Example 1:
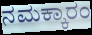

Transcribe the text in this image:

ನಮಕ್ಕಾರಂ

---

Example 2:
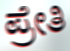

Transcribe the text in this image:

ಪ್ರೇತಿ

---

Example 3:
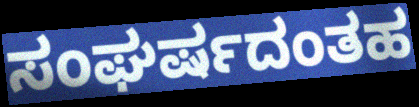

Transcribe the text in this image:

ಸಂಘರ್ಷದಂತಹ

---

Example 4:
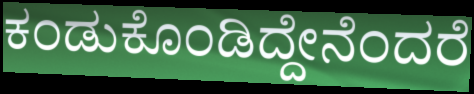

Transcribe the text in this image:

ಕಂಡುಕೊಂಡಿದ್ದೇನೆಂದರೆ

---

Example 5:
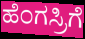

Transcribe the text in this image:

ಹೆಂಗಸ್ರಿಗೆ